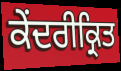
ਕੇਂਦਰੀਕ੍ਰਿਤ